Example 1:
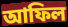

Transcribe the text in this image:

আফিল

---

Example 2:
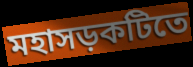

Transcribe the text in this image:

মহাসড়কটিতে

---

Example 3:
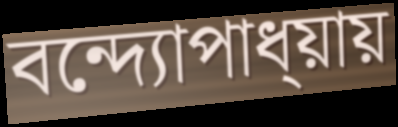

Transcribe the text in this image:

বন্দ্যোপাধ্য়ায়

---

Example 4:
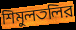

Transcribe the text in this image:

শিমুলতলির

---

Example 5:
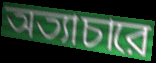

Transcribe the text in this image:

অত্যাচারে